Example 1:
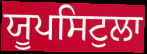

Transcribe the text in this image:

ਯੂਪਸਿਟੁਲਾ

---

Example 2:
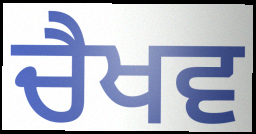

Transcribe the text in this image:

ਚੈਖਵ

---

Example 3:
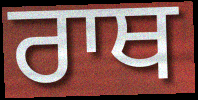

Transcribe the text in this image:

ਰਾਥ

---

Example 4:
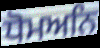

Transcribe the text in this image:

ਧੋਮਅਨਿ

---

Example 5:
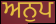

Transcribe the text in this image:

ਅਨੁਪ